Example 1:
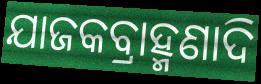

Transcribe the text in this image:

ଯାଜକବ୍ରାହ୍ମଣାଦି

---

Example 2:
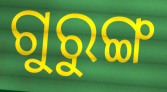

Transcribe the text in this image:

ଗୁରୁଙ୍ଗ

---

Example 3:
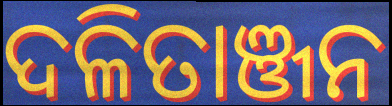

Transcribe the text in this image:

ଦଳିତାଞ୍ଜନ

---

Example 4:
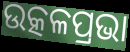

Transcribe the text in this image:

ଉତ୍କଳପ୍ରଭା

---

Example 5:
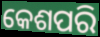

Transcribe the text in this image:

କେଶପରି